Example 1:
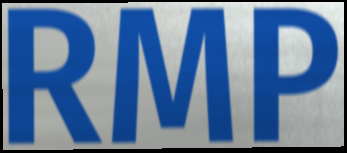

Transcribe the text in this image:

RMP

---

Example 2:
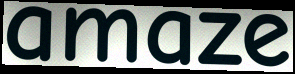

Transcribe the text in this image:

amaze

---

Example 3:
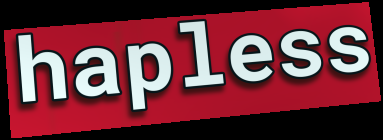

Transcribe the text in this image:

hapless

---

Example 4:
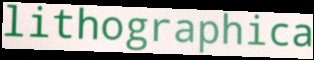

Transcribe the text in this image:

lithographica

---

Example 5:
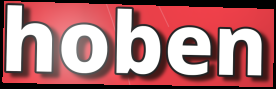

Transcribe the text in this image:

hoben